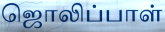
ஜொலிப்பாள்